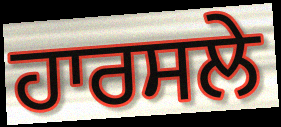
ਹਾਰਸਲੇ